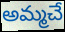
అమ్మచే